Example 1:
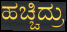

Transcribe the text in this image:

ಹಚ್ಚಿದ್ರು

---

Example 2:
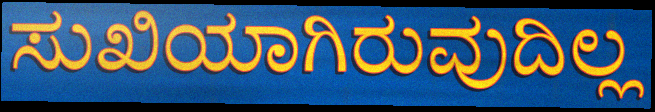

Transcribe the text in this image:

ಸುಖಿಯಾಗಿರುವುದಿಲ್ಲ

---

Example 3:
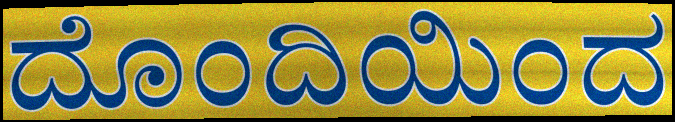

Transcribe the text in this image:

ದೊಂದಿಯಿಂದ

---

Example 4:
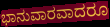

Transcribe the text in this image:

ಭಾನುವಾರವಾದರೂ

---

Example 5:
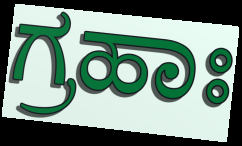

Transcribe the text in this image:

ಗ್ರಹಾಃ